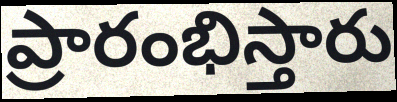
ప్రారంభిస్తారు